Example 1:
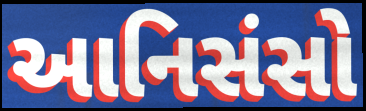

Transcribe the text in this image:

આનિસંસો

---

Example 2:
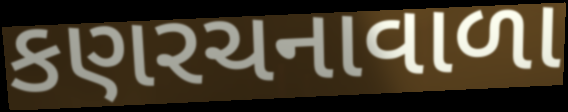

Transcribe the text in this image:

કણરચનાવાળા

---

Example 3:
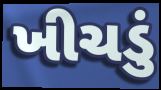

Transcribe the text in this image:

ખીચડું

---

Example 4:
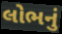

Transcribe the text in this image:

લોભનું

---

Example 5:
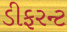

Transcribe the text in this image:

ડીફરન્ટ